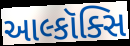
આલ્કૉક્સિ